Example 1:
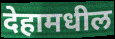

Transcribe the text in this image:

देहामधील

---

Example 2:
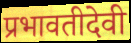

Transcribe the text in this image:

प्रभावतीदेवी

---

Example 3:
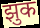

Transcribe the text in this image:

झुक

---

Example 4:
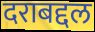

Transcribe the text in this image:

दराबद्दल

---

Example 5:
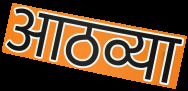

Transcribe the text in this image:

आठव्या